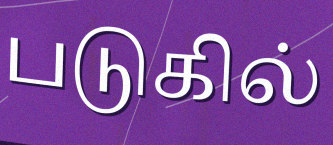
படுகில்